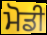
ਮੋਡੀ